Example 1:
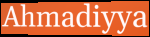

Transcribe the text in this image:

Ahmadiyya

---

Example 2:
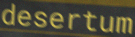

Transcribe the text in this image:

desertum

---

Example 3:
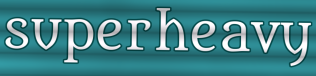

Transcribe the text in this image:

superheavy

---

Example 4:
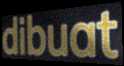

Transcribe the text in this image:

dibuat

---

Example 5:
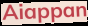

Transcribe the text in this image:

Aiappan